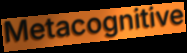
Metacognitive